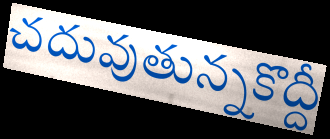
చదువుతున్నకొద్దీ